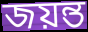
জয়ন্ত